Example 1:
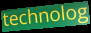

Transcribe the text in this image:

technolog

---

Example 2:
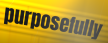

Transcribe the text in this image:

purposefully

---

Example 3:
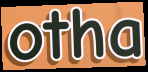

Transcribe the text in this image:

otha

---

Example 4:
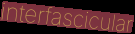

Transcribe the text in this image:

interfascicular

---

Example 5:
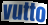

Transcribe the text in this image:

vutto